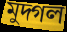
মুদ্গল